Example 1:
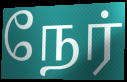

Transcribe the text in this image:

நேர்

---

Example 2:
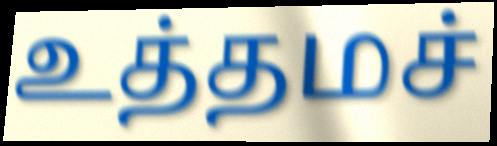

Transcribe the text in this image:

உத்தமச்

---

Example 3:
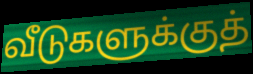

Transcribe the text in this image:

வீடுகளுக்குத்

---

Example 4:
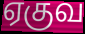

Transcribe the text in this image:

ஏகுவ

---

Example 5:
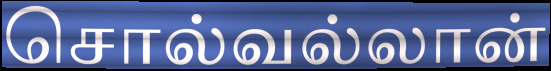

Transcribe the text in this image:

சொல்வல்லான்